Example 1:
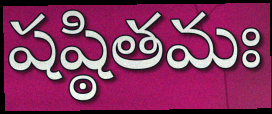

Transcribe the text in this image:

షష్ఠితమః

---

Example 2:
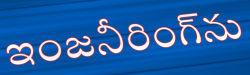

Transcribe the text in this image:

ఇంజనీరింగ్‌ను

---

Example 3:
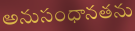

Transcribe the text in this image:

అనుసంధానతను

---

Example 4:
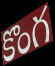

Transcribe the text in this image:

కొంగ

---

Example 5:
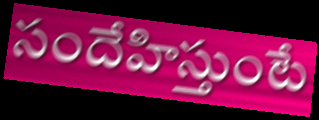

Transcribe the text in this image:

సందేహిస్తుంటే